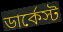
ডার্কেস্ট